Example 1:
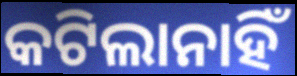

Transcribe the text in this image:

କଟିଲାନାହିଁ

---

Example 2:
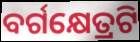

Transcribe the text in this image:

ବର୍ଗକ୍ଷେତ୍ରଟି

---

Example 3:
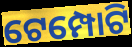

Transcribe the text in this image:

ଟେମ୍ପୋଟି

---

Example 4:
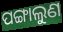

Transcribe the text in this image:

ପଙ୍ଗାଲୁଣ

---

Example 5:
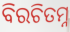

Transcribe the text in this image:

ବିରଚିତମ୍ନ